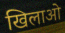
खिलाओ